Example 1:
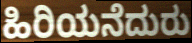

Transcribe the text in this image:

ಹಿರಿಯನೆದುರು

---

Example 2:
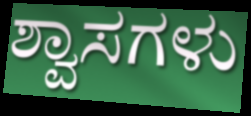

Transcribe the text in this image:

ಶ್ವಾಸಗಳು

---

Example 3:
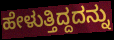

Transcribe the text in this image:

ಹೇಳುತ್ತಿದ್ದದನ್ನು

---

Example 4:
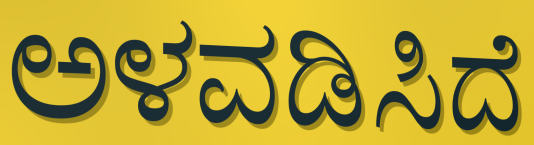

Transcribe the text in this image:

ಅಳವಡಿಸಿದೆ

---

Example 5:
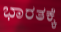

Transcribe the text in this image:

ಭಾರತಕ್ಕೆ